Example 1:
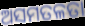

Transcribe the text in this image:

ଅସମତଳତା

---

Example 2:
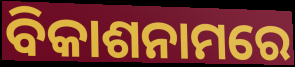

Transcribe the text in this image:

ବିକାଶନାମରେ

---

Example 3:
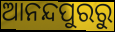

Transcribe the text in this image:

ଆନନ୍ଦପୁରରୁ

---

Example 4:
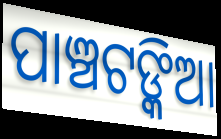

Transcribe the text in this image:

ପାଞ୍ଚଟଙ୍କିଆ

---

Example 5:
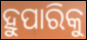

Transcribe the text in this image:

ହୁପାରିକୁ